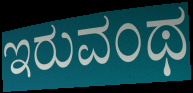
ಇರುವಂಥ